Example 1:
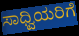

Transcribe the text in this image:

ಸಾಧ್ವಿಯರಿಗೆ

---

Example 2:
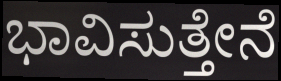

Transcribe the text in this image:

ಭಾವಿಸುತ್ತೇನೆ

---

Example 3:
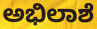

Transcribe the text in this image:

ಅಭಿಲಾಶೆ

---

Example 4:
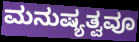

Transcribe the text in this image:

ಮನುಷ್ಯತ್ವವೂ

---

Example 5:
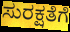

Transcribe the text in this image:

ಸುರಕ್ಷತೆಗೆ